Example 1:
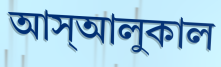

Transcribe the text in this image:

আস্আলুকাল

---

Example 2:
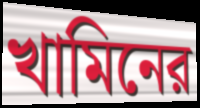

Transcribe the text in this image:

খামিনের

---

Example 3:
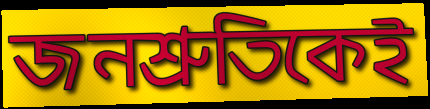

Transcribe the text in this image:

জনশ্রুতিকেই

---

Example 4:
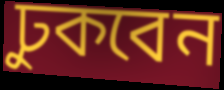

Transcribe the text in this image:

ঢুকবেন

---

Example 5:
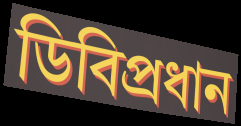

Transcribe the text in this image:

ডিবিপ্রধান